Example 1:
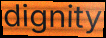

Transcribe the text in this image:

dignity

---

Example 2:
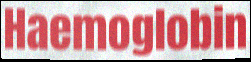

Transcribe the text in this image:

Haemoglobin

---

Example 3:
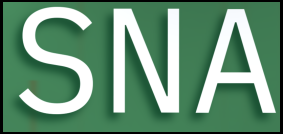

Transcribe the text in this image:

SNA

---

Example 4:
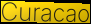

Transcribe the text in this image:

Curacao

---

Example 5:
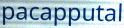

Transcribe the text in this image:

pacapputal